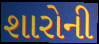
શારોની